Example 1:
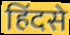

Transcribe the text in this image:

हिंदसे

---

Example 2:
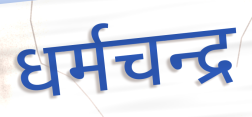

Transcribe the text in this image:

धर्मचन्द्र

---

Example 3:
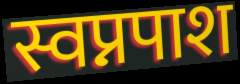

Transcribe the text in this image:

स्वप्नपाश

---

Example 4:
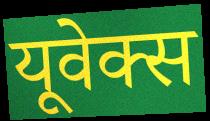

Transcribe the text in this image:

यूवेक्स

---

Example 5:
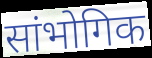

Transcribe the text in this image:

सांभोगिक